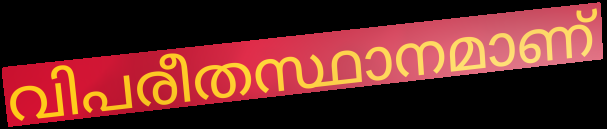
വിപരീതസ്ഥാനമാണ്